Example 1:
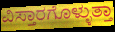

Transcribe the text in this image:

ವಿಸ್ತಾರಗೊಳ್ಳುತ್ತಾ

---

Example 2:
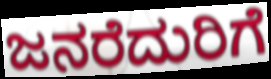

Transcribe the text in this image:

ಜನರೆದುರಿಗೆ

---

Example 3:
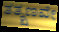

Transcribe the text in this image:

ತತ್ಕ್ಷಣವೇ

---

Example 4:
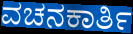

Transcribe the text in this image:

ವಚನಕಾರ್ತಿ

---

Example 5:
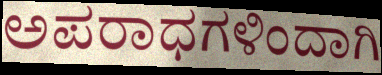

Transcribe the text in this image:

ಅಪರಾಧಗಳಿಂದಾಗಿ